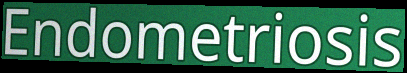
Endometriosis